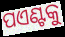
ପଏଣ୍ଟକୁ